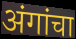
अंगांचा